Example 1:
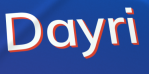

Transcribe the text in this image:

Dayri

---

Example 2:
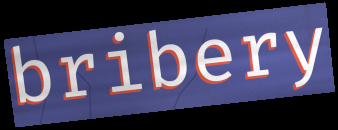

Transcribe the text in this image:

bribery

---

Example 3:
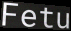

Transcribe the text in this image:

Fetu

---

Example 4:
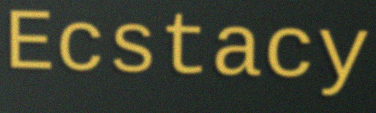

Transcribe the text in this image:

Ecstacy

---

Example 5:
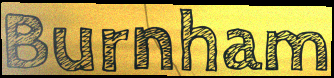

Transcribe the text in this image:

Burnham